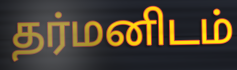
தர்மனிடம்